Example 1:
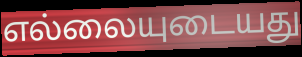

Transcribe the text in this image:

எல்லையுடையது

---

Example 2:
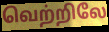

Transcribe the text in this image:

வெற்றிலே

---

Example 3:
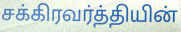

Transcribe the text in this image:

சக்கிரவர்த்தியின்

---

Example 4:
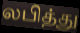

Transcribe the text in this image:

லபித்து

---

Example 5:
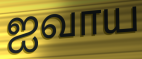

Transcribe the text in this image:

ஐவாய